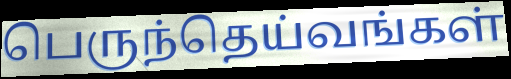
பெருந்தெய்வங்கள்